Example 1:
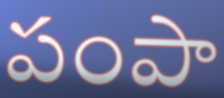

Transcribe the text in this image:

పంపా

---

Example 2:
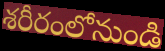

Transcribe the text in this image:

శరీరంలోనుండి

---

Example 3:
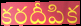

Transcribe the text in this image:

కరదీపిక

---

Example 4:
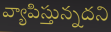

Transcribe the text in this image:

వ్యాపిస్తున్నదని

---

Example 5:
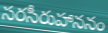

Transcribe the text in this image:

సరసీరుహాననం